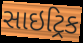
સાઇટ્રિક